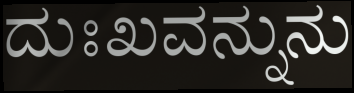
ದುಃಖವನ್ನುನು